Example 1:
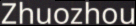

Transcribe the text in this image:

Zhuozhou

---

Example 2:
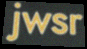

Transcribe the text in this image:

jwsr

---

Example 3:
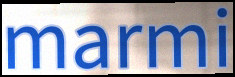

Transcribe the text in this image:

marmi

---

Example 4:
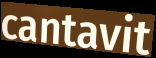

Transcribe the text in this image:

cantavit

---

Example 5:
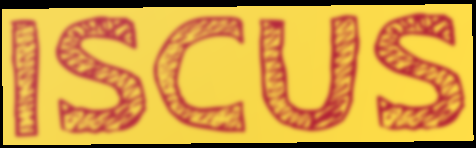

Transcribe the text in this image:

ISCUS